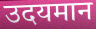
उदयमान